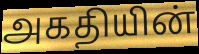
அகதியின்